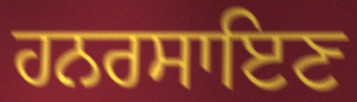
ਹਨਰਸਾਇਣ